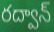
రద్వాన్